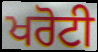
ਖਰੋਟੀ